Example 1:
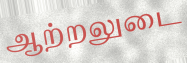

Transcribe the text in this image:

ஆற்றலுடை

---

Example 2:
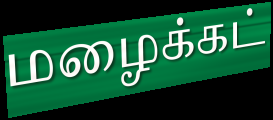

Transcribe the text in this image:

மழைக்கட்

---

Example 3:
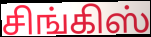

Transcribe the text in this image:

சிங்கிஸ்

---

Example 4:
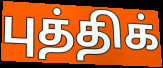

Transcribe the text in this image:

புத்திக்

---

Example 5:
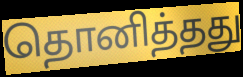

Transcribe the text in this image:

தொனித்தது